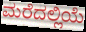
ಮರೆದಲ್ಲಿಯೆ